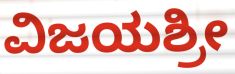
ವಿಜಯಶ್ರೀ